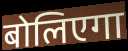
बोलिएगा